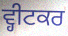
ਵ੍ਹੀਟਕਰ